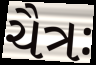
ચૈત્રઃ